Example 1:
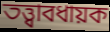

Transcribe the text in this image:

তত্ত্বাবধায়ক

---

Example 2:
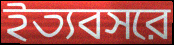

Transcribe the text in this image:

ইত্যবসরে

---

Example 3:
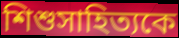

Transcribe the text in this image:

শিশুসাহিত্যকে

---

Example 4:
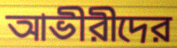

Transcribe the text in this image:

আভীরীদের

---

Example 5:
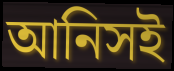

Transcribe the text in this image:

আনিসই